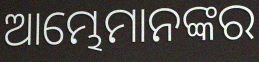
ଆମ୍ଭେମାନଙ୍କର